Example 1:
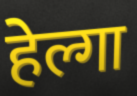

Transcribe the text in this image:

हेल्गा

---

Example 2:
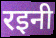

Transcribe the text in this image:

रइनी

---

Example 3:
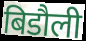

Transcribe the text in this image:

बिडौली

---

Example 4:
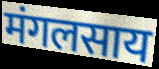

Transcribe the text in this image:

मंगलसाय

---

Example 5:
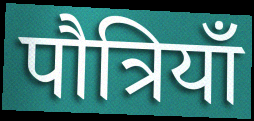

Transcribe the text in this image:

पौत्रियाँ